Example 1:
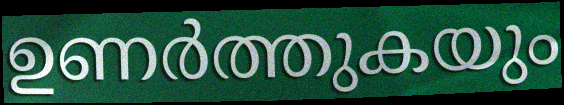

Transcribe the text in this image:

ഉണർത്തുകയും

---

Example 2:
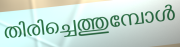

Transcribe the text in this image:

തിരിച്ചെത്തുമ്പോൾ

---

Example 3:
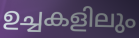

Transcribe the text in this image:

ഉച്ചകളിലും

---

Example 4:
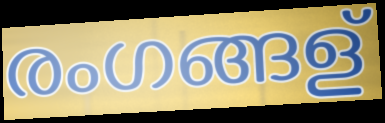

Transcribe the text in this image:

രംഗങ്ങള്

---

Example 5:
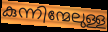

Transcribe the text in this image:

കുന്നിന്മേലുള്ള